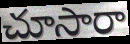
చూసారా